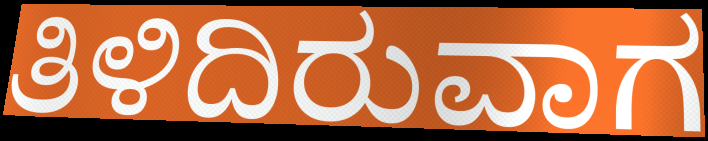
ತಿಳಿದಿರುವಾಗ